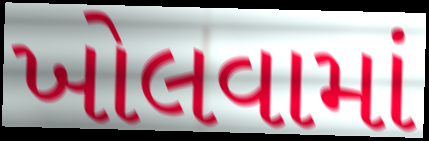
ખોલવામાં